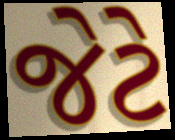
જેટે